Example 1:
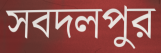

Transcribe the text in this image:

সবদলপুর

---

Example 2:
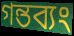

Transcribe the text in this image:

গন্তব্যং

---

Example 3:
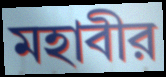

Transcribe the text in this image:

মহাবীর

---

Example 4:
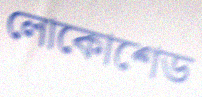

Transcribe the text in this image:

লোকোশেড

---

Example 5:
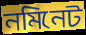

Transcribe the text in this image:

নমিনেট